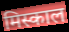
मिस्काल